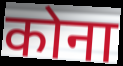
कोना